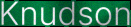
Knudson